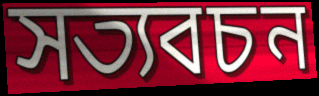
সত্যবচন